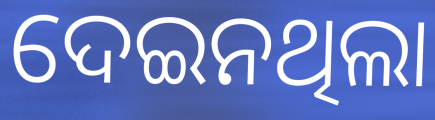
ଦେଇନଥିଲା